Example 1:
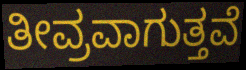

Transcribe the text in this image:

ತೀವ್ರವಾಗುತ್ತವೆ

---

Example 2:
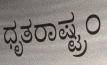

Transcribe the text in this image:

ಧೃತರಾಷ್ಟ್ರಂ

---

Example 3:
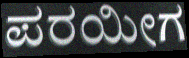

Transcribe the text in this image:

ಪರಯೀಗ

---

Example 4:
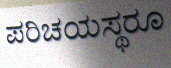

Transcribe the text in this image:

ಪರಿಚಯಸ್ಥರೂ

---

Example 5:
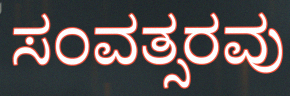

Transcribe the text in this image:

ಸಂವತ್ಸರವು